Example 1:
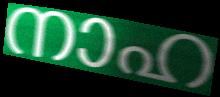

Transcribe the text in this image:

നാഹ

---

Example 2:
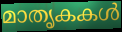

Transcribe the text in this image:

മാതൃകകൾ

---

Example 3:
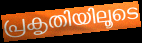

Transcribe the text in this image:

പ്രകൃതിയിലൂടെ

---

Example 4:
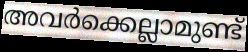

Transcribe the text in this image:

അവർക്കെല്ലാമുണ്ട്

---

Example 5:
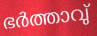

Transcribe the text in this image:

ഭർത്താവു്